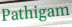
Pathigam